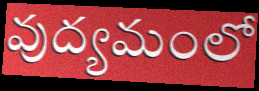
వుద్యమంలో